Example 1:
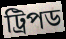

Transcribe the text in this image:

ট্রিপড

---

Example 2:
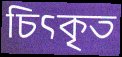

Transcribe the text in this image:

চিৎকৃত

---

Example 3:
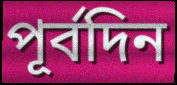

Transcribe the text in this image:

পূর্বদিন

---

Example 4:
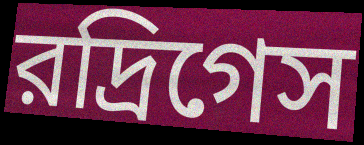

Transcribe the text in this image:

রদ্রিগেস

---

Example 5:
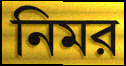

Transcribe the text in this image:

নিমর